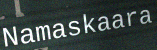
Namaskaara